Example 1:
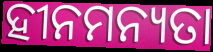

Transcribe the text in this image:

ହୀନମନ୍ୟତା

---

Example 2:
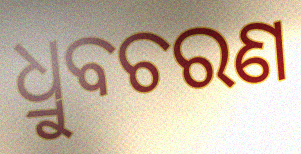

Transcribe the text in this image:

ଧ୍ରୁବଚରଣ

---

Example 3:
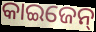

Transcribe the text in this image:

କାଇଜେନ୍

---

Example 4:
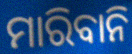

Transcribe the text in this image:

ମାରିବାନି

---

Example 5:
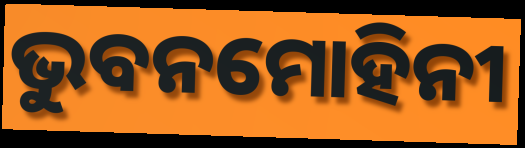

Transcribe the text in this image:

ଭୁବନମୋହିନୀ